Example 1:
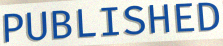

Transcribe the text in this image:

PUBLISHED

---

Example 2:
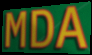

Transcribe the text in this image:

MDA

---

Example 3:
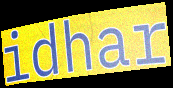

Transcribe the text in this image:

idhar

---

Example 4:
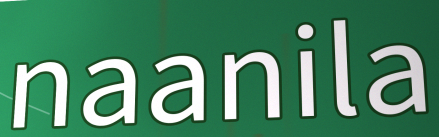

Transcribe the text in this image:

naanila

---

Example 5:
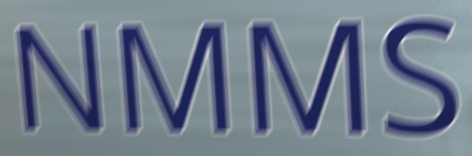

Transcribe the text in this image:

NMMS